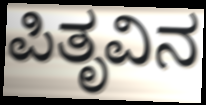
ಪಿತೃವಿನ